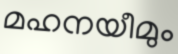
മഹനയീമും